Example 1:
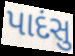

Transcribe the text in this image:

પાદંસુ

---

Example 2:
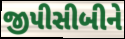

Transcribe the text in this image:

જીપીસીબીને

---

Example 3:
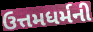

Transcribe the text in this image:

ઉત્તમધર્મની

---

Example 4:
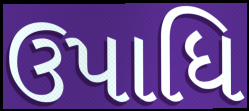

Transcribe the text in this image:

ઉપાધિ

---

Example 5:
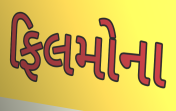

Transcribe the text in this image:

ફિલમોના